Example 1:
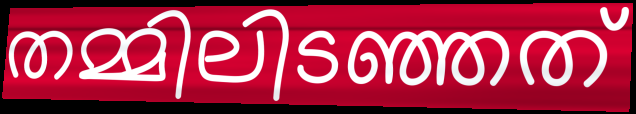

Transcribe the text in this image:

തമ്മിലിടഞ്ഞത്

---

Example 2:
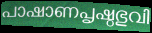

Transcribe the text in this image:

പാഷാണപൃഷ്ഠഭുവി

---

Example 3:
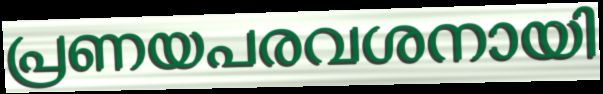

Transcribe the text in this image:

പ്രണയപരവശനായി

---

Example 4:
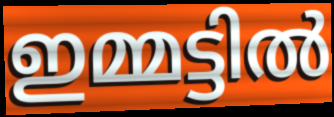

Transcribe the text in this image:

ഇമ്മട്ടിൽ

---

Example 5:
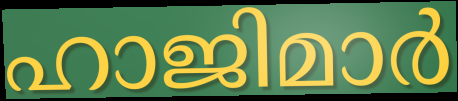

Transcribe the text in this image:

ഹാജിമാർ